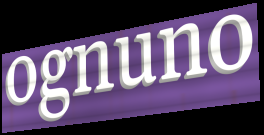
ognuno